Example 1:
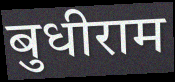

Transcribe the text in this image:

बुधीराम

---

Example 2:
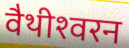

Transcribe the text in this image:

वैथीश्वरन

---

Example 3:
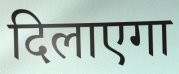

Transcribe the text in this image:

दिलाएगा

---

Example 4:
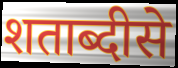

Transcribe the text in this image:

शताब्दीसे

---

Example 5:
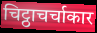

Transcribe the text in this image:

चिट्ठाचर्चाकार